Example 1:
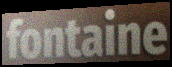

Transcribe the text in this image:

fontaine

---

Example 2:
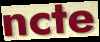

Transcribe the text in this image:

ncte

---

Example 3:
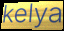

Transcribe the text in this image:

kelya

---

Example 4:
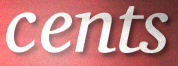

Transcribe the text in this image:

cents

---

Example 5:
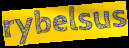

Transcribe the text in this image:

rybelsus